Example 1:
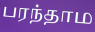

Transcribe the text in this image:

பரந்தாம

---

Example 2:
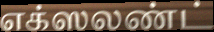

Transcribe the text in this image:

எக்ஸலண்ட்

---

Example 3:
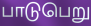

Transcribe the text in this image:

பாடுபெறு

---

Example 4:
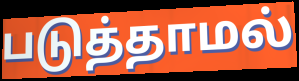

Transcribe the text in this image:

படுத்தாமல்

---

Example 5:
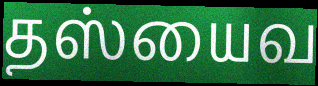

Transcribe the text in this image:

தஸ்யைவ